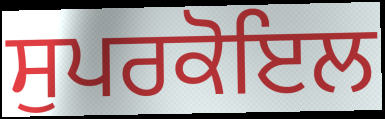
ਸੁਪਰਕੋਇਲ